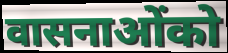
वासनाओंको